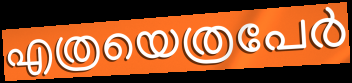
എത്രയെത്രപേർ